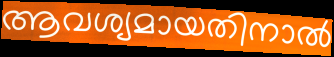
ആവശ്യമായതിനാൽ